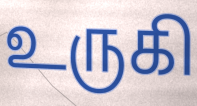
உருகி